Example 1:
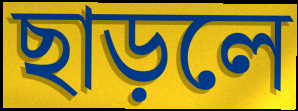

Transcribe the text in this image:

ছাড়লে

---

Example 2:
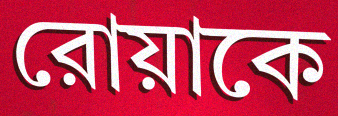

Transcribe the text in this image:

রোয়াকে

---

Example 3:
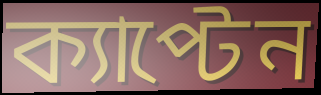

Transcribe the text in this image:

ক্যাপ্টেন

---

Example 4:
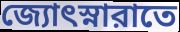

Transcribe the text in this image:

জ্যোৎস্নারাতে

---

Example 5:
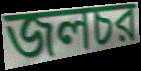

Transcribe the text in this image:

জলচর